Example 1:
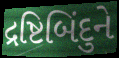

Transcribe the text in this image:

દ્રષ્ટિબિંદુને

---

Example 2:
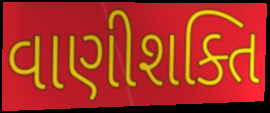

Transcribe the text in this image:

વાણીશક્તિ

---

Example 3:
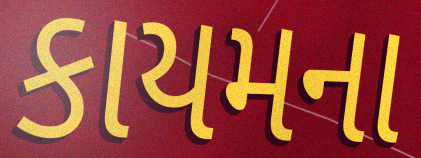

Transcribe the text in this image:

કાયમના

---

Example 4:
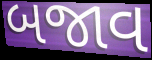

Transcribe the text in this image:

બજાવ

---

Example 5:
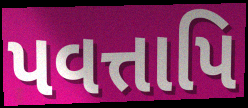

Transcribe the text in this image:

પવત્તાપિ